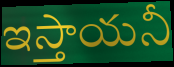
ఇస్తాయనీ